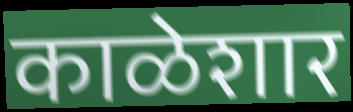
काळेशार